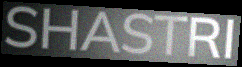
SHASTRI